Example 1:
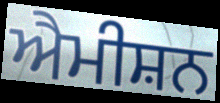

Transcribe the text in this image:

ਐਮੀਸ਼ਨ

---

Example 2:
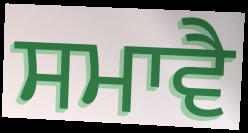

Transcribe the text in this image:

ਸਮਾਵੈ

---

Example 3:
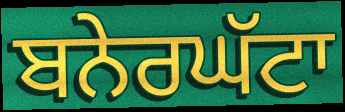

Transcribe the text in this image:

ਬਨੇਰਘੱਟਾ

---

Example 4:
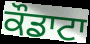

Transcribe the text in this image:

ਕੌਡਾਟਾ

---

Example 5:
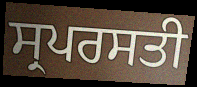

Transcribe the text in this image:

ਸ੍ਰਪਰਸਤੀ